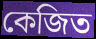
কেজিত